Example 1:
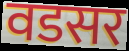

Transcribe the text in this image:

वडसर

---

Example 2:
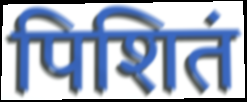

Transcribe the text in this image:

पिशितं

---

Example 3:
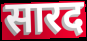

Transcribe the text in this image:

सारद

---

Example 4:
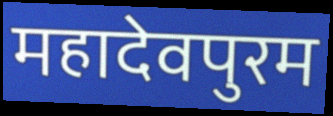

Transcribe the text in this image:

महादेवपुरम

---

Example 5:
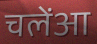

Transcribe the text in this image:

चलेंआ